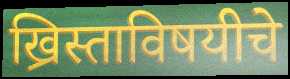
ख्रिस्ताविषयीचे